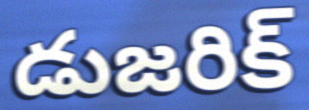
డుజరిక్